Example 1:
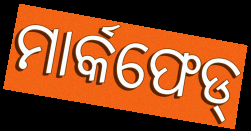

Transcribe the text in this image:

ମାର୍କଫେଡ୍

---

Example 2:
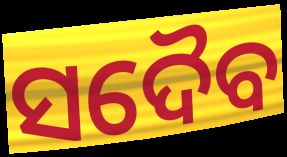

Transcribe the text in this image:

ସଦୈବ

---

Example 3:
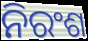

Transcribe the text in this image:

ନିରଂଶ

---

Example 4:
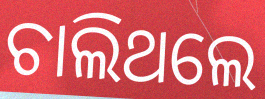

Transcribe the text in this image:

ଚାଲିଥଲେ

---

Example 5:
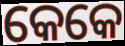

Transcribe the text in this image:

କେକେ